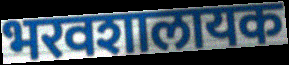
भरवशालायक